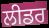
ਲੀਡਰ